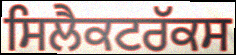
ਸਿਲੈਕਟਰੱਕਸ